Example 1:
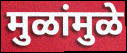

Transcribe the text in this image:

मुळांमुळे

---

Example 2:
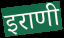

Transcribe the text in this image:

इराणी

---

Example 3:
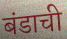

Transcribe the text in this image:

बंडाची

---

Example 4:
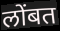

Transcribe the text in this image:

लोंबत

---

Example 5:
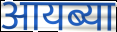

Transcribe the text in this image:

आयब्या